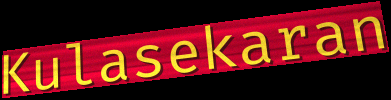
Kulasekaran